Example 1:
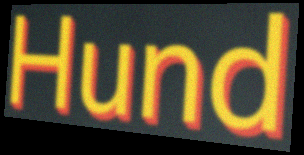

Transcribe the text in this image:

Hund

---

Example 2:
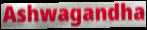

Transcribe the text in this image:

Ashwagandha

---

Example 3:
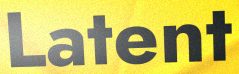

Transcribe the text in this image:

Latent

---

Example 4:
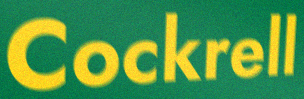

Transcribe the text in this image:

Cockrell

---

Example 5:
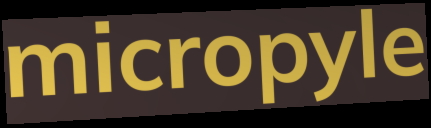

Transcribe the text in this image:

micropyle